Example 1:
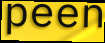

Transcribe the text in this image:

peen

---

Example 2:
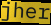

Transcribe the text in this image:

jher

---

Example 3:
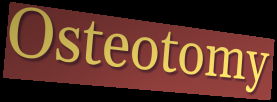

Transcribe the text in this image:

Osteotomy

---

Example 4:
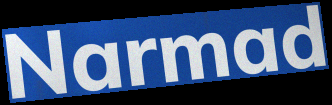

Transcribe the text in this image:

Narmad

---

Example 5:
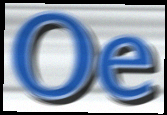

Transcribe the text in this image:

Oe